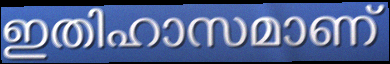
ഇതിഹാസമാണ്